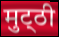
मुट्‌ठी